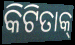
କିଟିତାକ୍